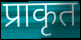
प्राकृत